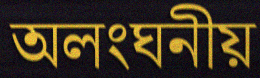
অলংঘনীয়